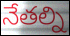
నేతల్ని